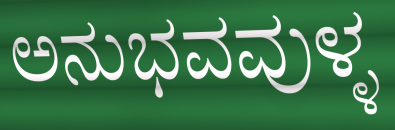
ಅನುಭವವುಳ್ಳ